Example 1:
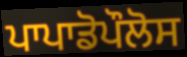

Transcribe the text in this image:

ਪਾਪਾਡੋਪੌਲੋਸ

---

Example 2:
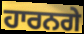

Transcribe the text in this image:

ਹਾਰਨਗੇ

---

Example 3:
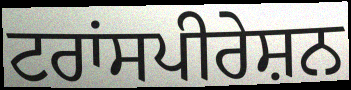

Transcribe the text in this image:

ਟਰਾਂਸਪੀਰੇਸ਼ਨ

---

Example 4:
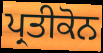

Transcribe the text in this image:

ਪ੍ਰਤੀਕੋਨ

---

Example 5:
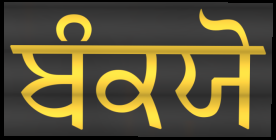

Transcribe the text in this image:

ਬੰਕਯੋ